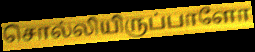
சொல்லியிருப்பாளோ